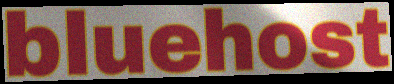
bluehost